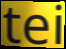
tei